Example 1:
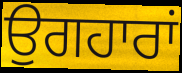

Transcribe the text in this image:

ਉਗਹਾਰਾਂ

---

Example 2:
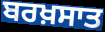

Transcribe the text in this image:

ਬਰਖ਼ਸਾਤ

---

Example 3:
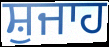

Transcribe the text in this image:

ਸ਼ੁਜਾਹ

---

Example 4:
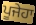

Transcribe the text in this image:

ਪੂਜੇਹਾ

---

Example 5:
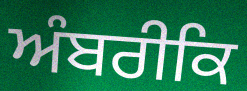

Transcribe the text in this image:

ਅੰਬਰੀਕਿ